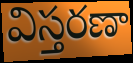
విస్తరణా